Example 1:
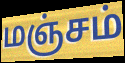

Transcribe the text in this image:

மஞ்சம்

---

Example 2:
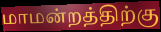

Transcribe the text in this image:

மாமன்றத்திற்கு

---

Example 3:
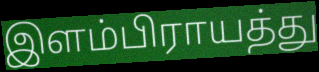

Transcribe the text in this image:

இளம்பிராயத்து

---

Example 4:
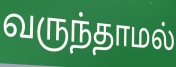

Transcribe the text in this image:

வருந்தாமல்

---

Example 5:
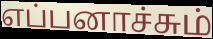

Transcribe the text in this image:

எப்பனாச்சும்